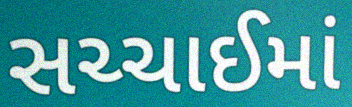
સચ્ચાઈમાં